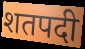
शतपदी